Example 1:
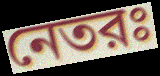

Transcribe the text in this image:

নেতরঃ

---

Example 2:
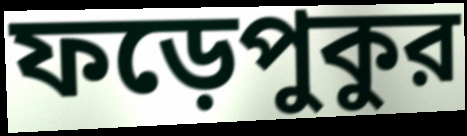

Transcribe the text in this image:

ফড়েপুকুর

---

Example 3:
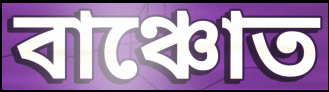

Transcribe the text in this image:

বাঞ্চোত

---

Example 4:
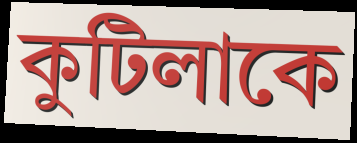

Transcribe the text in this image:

কুটিলাকে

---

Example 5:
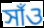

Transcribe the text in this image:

সাঁও